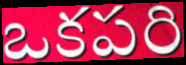
ఒకపరి